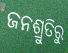
ଜନଶ୍ରୁତିରୁ